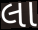
લા